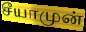
சீயாமுன்